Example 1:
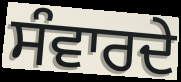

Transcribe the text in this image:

ਸੰਵਾਰਦੇ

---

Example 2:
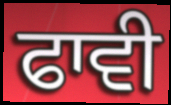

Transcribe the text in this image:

ਫਾਵੀ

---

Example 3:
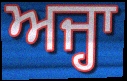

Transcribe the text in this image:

ਅਜ੍ਹਾ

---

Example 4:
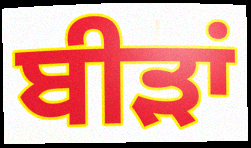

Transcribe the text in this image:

ਬੀੜਾਂ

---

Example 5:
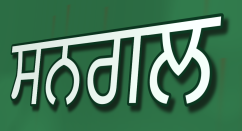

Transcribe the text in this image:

ਸਨਗਲ